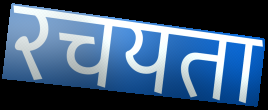
रचयता